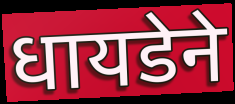
धायडेने